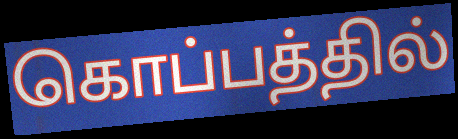
கொப்பத்தில்